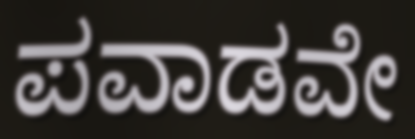
ಪವಾಡವೇ